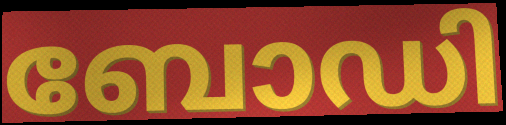
ബോഡി